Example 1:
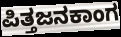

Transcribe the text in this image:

ಪಿತ್ತಜನಕಾಂಗ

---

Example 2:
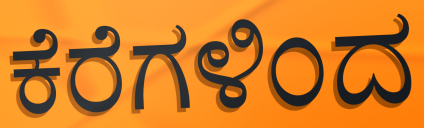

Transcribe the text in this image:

ಕೆರೆಗಳಿಂದ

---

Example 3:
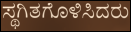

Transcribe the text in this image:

ಸ್ಥಗಿತಗೊಳಿಸಿದರು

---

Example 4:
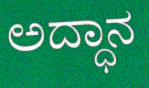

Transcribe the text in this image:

ಅದ್ಧಾನ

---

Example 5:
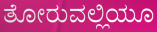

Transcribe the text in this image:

ತೋರುವಲ್ಲಿಯೂ